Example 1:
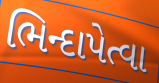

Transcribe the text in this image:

ભિન્દાપેત્વા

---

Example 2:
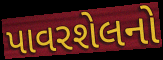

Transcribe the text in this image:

પાવરશેલનો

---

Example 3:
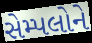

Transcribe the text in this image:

સેમ્પલોને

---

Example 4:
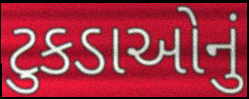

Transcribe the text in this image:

ટુકડાઓનું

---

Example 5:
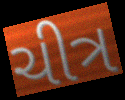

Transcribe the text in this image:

ચીત્ર